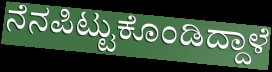
ನೆನಪಿಟ್ಟುಕೊಂಡಿದ್ದಾಳೆ